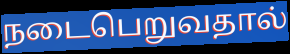
நடைபெறுவதால்